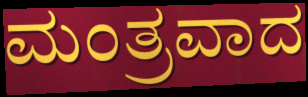
ಮಂತ್ರವಾದ